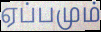
ஏப்பமும்